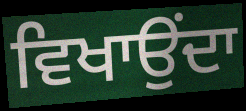
ਵਿਖਾਉਂਦਾ